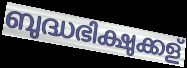
ബുദ്ധഭിക്ഷുക്കള്